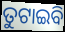
ତୁଟାଇବି